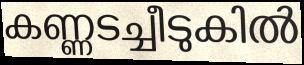
കണ്ണടച്ചീടുകിൽ